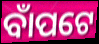
ବାଁପଟେ